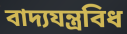
বাদ্যযন্ত্ৰবিধ